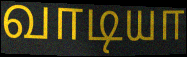
வாடியா